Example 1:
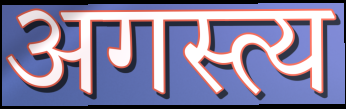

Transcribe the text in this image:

अगस्त्य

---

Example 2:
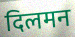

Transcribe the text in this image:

दिलमन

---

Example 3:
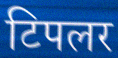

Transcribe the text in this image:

टिपलर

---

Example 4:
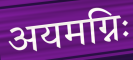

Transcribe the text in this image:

अयमग्निः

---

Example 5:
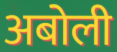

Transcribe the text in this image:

अबोली